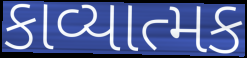
કાવ્યાત્મક